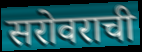
सरोवराची